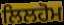
ਲਿਲਹੋਮ